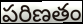
పరిణతం